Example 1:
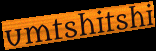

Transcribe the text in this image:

umtshitshi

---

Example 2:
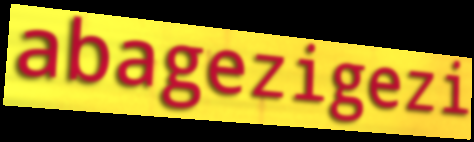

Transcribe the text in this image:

abagezigezi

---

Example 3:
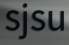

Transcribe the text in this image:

sjsu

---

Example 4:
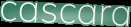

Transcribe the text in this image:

cascara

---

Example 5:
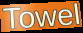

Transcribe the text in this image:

Towel